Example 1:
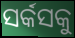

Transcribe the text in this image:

ସର୍କସକୁ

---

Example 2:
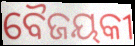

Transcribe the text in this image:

ବୈଜୟକୀ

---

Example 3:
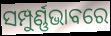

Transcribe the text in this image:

ସମ୍ପୁର୍ଣ୍ଣଭାବରେ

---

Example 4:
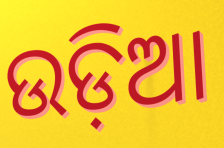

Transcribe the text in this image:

ଉଡ଼ିଆ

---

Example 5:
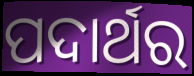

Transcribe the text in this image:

ପଦାର୍ଥର